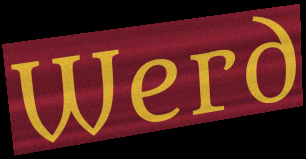
Werd